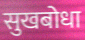
सुखबोधा